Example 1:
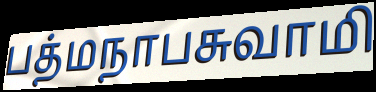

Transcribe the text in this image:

பத்மநாபசுவாமி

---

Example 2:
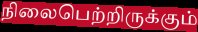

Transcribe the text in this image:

நிலைபெற்றிருக்கும்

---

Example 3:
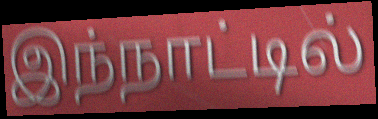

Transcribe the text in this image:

இந்நாட்டில்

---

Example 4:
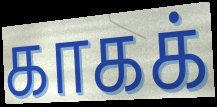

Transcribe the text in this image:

காகக்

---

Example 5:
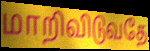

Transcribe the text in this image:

மாறிவிடுவதே